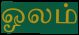
ஓலம்